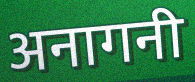
अनागनी